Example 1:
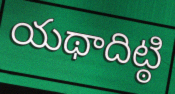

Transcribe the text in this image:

యథాదిట్ఠి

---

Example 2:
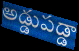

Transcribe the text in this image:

అడ్డుపడ్డా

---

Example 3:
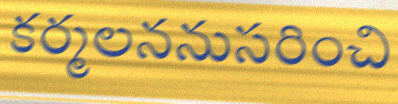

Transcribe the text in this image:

కర్మలననుసరించి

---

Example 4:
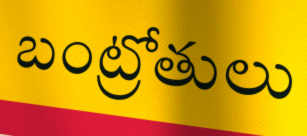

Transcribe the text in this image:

బంట్రోతులు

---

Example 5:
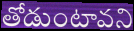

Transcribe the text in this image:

తోడుంటావని